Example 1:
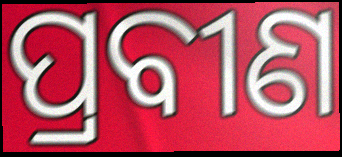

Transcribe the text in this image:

ପ୍ରବୀଣ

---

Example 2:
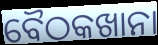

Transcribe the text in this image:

ବୈଠକଖାନା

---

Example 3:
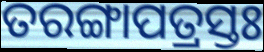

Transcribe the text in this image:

ତରଙ୍ଗାପତ୍ରସ୍ତଃ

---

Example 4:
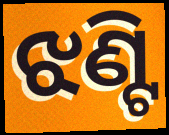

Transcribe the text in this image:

ଝଣ୍ଟି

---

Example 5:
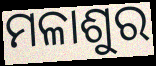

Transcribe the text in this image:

ମଳାଶୁର